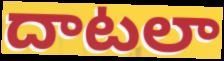
దాటలా